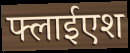
फ्लाईएश